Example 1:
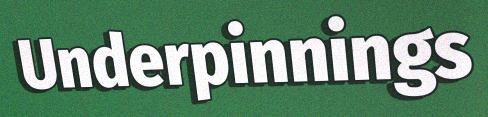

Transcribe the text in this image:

Underpinnings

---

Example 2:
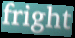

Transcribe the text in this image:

fright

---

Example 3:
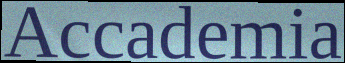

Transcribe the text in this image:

Accademia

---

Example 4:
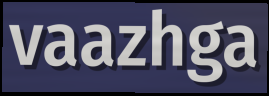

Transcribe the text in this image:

vaazhga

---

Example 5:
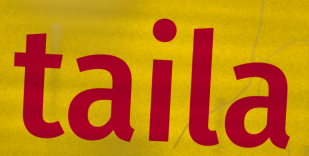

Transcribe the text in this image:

taila